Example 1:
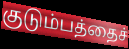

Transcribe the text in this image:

குடும்பத்தைச்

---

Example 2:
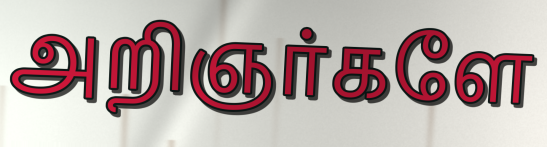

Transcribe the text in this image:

அறிஞர்களே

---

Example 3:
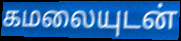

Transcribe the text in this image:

கமலையுடன்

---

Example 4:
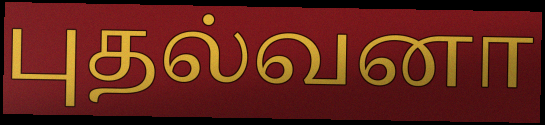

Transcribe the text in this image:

புதல்வனா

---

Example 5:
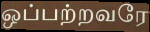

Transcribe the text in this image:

ஒப்பற்றவரே